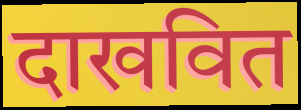
दाखवित